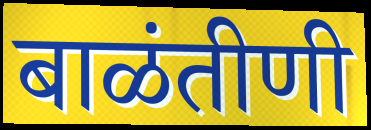
बाळंतीणी